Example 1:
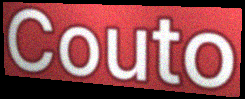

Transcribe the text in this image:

Couto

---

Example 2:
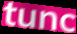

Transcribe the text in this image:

tunc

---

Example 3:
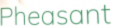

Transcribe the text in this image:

Pheasant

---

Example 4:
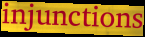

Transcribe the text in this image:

injunctions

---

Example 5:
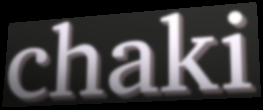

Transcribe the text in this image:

chaki